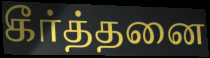
கீர்த்தனை